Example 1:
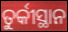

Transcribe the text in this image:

ତୁର୍କୀସ୍ଥାନ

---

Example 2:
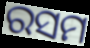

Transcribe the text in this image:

ରସମ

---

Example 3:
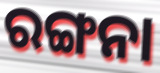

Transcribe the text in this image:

ରଙ୍ଗନା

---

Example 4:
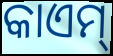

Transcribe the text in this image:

କାଏମ୍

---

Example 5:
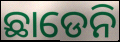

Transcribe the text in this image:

ଛାଡେନି